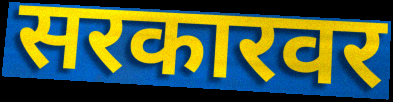
सरकारवर